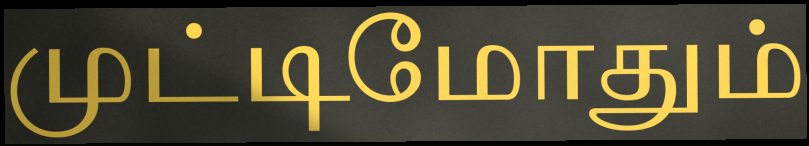
முட்டிமோதும்